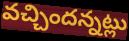
వచ్చిందన్నట్లు